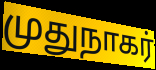
முதுநாகர்